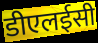
डीएलईसी